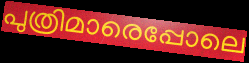
പുത്രിമാരെപ്പോലെ